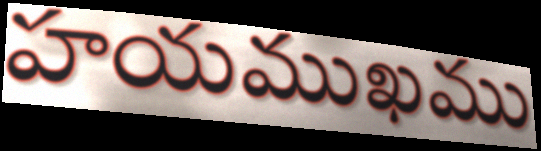
హయముఖము